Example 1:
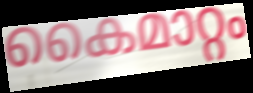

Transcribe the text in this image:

കൈമാറ്റം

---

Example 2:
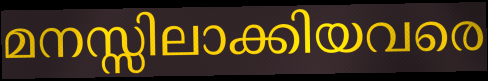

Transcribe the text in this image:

മനസ്സിലാക്കിയവരെ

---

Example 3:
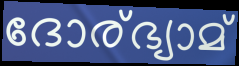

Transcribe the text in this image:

ദോര്ഭ്യാമ്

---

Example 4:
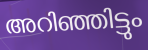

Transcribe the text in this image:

അറിഞ്ഞിട്ടും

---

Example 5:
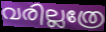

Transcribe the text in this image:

വരില്ലത്രേ